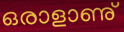
ഒരാളാണു്